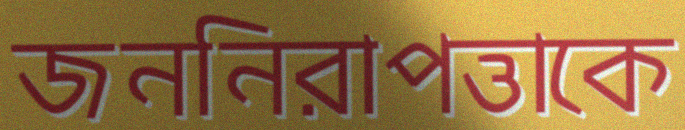
জননিরাপত্তাকে